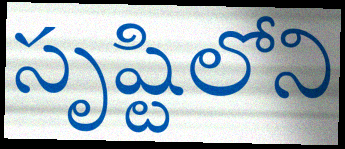
సృష్టిలోని